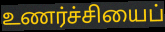
உணர்ச்சியைப்